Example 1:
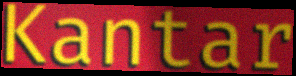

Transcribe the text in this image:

Kantar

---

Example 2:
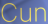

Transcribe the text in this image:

Cun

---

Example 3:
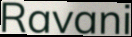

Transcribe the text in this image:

Ravani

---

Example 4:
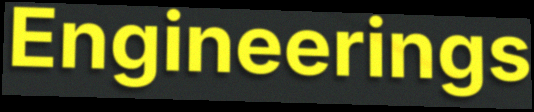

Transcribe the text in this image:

Engineerings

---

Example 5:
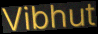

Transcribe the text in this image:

Vibhut